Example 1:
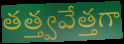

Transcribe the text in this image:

తత్త్వవేత్తగా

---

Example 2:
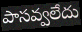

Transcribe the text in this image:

పాసవ్వలేదు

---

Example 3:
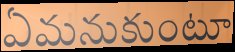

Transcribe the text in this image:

ఏమనుకుంటూ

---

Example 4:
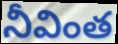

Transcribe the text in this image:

నీవింత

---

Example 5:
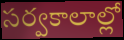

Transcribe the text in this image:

సర్వకాలాల్లో